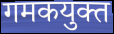
गमकयुक्त